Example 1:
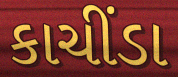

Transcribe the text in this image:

કાચીંડા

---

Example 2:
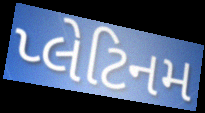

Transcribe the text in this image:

પ્લેટિનમ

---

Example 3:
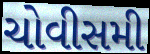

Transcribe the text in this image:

ચોવીસમી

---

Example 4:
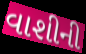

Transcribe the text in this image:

વાશીની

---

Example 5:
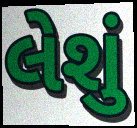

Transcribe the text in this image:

લેશું